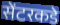
सेंटरकडे